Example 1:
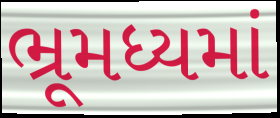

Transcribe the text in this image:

ભ્રૂમધ્યમાં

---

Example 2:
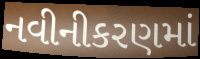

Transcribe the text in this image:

નવીનીકરણમાં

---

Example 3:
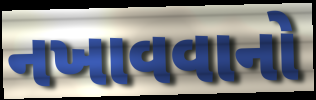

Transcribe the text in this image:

નખાવવાનો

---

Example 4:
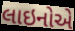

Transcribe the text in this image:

લાઇનોએ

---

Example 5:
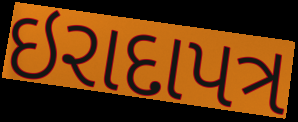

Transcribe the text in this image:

ઇરાદાપત્ર